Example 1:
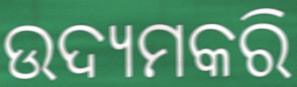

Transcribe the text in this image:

ଉଦ୍ୟମକରି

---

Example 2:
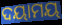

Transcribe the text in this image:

ଦୟାମୟ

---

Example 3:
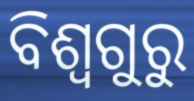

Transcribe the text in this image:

ବିଶ୍ୱଗୁରୁ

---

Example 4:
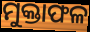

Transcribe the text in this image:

ମୁକ୍ତାଫଳ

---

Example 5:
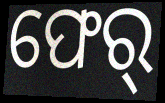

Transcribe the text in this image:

ଫେର୍